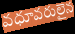
వధూవరులైన